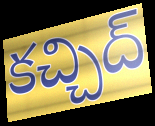
కచ్చిద్